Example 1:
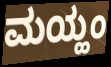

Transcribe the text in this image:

ಮಯ್ಹಂ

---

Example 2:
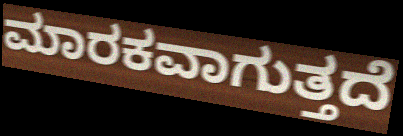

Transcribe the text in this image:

ಮಾರಕವಾಗುತ್ತದೆ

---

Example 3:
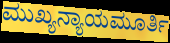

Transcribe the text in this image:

ಮುಖ್ಯನ್ಯಾಯಮೂರ್ತಿ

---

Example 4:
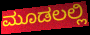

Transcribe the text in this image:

ಮೂಡಲಲ್ಲಿ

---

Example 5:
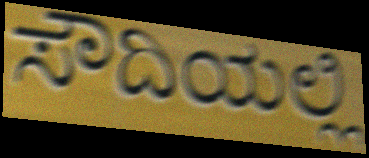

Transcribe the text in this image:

ಸೌದಿಯಲ್ಲಿ